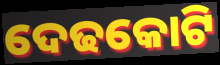
ଦେଢକୋଟି